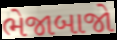
ભેજાબાજો